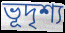
ভূদৃশ্য